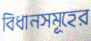
বিধানসমূহের